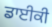
ਡਾਈਕੀ